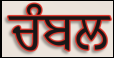
ਚੰਬਲ